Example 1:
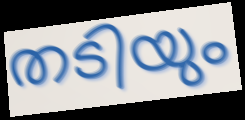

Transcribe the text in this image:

തടിയും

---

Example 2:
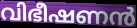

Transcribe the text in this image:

വിഭീഷണൻ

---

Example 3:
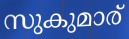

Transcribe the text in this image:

സുകുമാര്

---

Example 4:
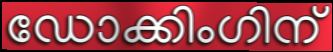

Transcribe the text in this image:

ഡോക്കിംഗിന്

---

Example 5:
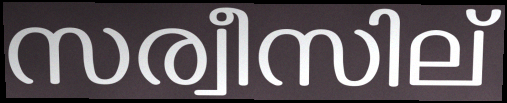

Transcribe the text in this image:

സര്വീസില്